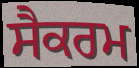
ਸੈਕਰਮ